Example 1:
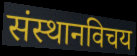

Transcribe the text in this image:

संस्थानविचय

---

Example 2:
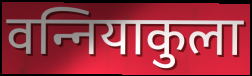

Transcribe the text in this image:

वन्नियाकुला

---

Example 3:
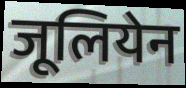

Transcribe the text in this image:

जूलियेन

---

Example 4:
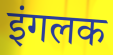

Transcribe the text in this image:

इंगलक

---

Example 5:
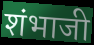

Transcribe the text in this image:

शंभाजी